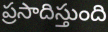
ప్రసాదిస్తుంది